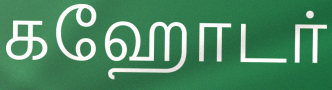
கஹோடர்